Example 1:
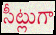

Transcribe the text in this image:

సీట్లుగా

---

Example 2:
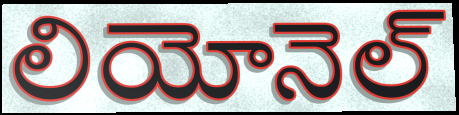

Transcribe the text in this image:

లియోనెల్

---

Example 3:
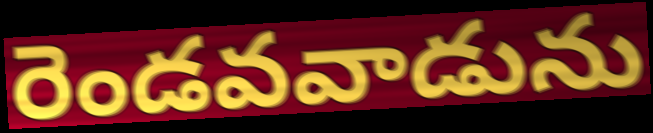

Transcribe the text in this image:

రెండవవాడును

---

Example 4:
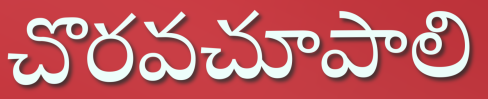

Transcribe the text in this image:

చొరవచూపాలి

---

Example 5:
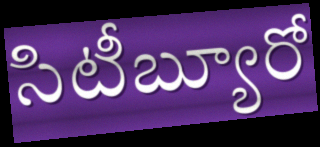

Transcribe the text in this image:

సిటీబ్యూరో